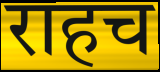
राहच